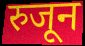
रुजून